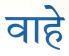
वाहे